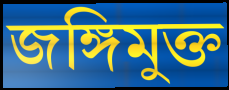
জঙ্গিমুক্ত